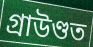
গ্ৰাউণ্ডত